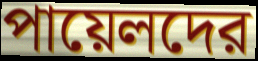
পায়েলদের